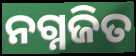
ନଗ୍ନଜିତ